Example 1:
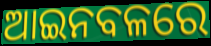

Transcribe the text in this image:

ଆଇନବଳରେ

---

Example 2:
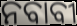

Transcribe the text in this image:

ନବାବୀ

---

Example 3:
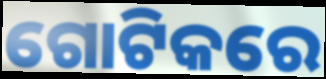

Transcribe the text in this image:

ଗୋଟିକରେ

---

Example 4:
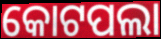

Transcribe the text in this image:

କୋଟପଲା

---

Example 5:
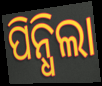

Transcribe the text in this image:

ପିନ୍ଧିଲା